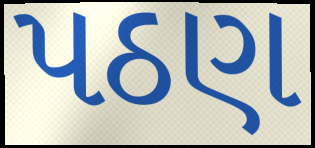
પઠણ